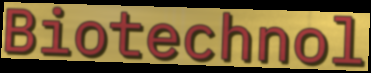
Biotechnol